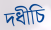
দধীচি